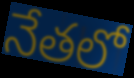
నేతలో